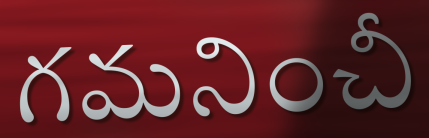
గమనించీ